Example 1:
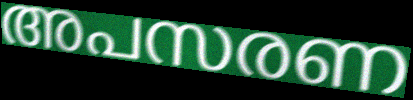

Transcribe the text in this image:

അപസരണ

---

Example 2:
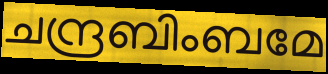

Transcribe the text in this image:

ചന്ദ്രബിംബമേ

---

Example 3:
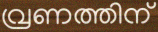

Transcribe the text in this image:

വ്രണത്തിന്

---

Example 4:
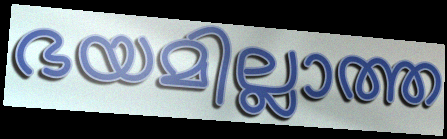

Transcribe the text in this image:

ഭയമില്ലാത്ത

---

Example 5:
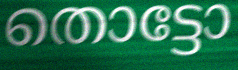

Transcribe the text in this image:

തൊട്ടോ